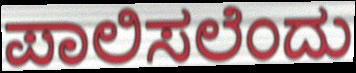
ಪಾಲಿಸಲೆಂದು